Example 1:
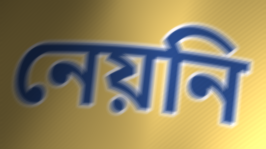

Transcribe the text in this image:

নেয়নি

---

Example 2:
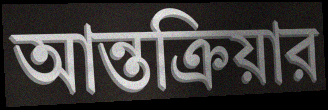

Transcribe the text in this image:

আন্তক্রিয়ার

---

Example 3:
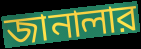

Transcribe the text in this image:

জানালার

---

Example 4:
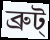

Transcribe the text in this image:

ব্রুট্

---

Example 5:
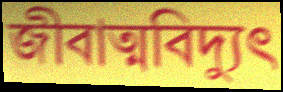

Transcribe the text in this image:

জীবাত্মবিদ্যুৎ